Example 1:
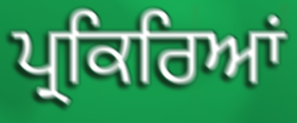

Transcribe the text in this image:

ਪ੍ਰਕਿਰਿਆਂ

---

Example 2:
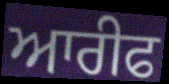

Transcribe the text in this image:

ਆਰੀਫ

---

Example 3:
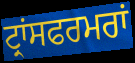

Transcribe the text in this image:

ਟ੍ਰਾਂਸਫਰਮਰਾਂ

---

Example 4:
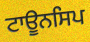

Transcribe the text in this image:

ਟਾਊਨਸਿਪ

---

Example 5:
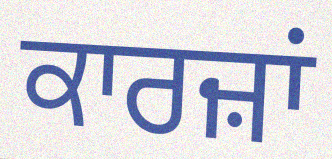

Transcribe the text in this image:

ਕਾਰਜ਼ਾਂ